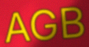
AGB